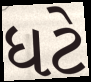
ધટે